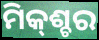
ମିକ୍‌ଶ୍ଚର